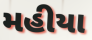
મહીયા